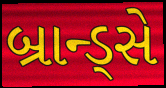
બ્રાન્ડ્સે